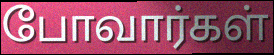
போவார்கள்